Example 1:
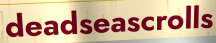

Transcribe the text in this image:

deadseascrolls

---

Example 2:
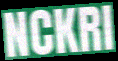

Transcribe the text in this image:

NCKRI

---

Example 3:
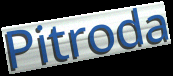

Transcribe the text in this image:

Pitroda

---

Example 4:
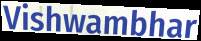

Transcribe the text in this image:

Vishwambhar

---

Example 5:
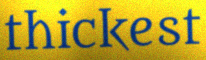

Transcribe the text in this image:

thickest